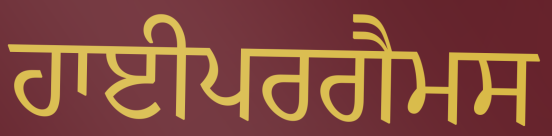
ਹਾਈਪਰਗੈਮਸ